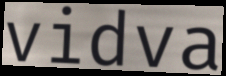
vidva